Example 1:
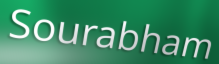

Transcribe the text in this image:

Sourabham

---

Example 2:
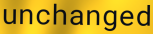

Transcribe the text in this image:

unchanged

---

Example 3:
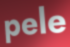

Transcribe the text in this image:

pele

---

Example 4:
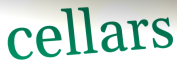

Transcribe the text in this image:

cellars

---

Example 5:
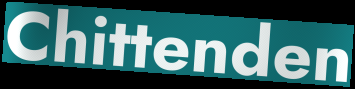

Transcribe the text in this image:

Chittenden